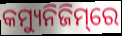
କମ୍ୟୁନିଜିମ୍‌ରେ